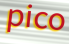
pico